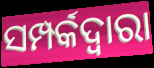
ସମ୍ପର୍କଦ୍ୱାରା